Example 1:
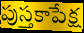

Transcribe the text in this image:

పుస్తకాపేక్ష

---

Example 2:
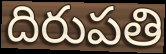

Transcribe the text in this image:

దిరుపతి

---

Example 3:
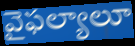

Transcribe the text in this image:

వైఫల్యాలూ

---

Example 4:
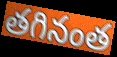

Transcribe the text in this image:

తగినంత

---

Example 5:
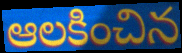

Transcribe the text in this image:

ఆలకించిన